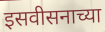
इसवीसनाच्या